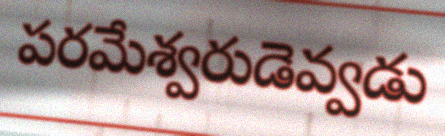
పరమేశ్వరుడెవ్వడు